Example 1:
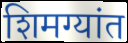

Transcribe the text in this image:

शिमग्यांत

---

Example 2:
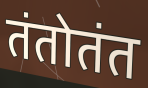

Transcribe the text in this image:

तंतोतंत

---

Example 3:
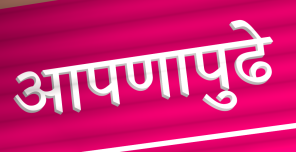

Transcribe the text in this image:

आपणापुढे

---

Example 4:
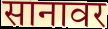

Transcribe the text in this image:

सानावर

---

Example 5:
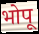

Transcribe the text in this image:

भोपू